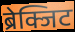
ब्रेक्जिट